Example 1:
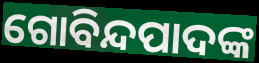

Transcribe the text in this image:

ଗୋବିନ୍ଦପାଦଙ୍କ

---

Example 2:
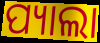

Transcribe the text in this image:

ପ୍ୟାଲା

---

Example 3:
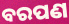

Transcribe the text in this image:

ବରପଣ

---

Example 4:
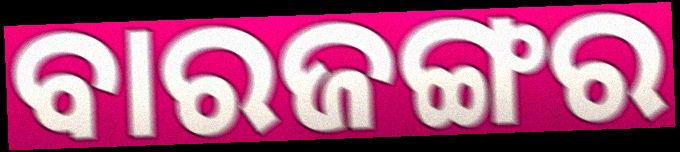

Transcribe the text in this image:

ବାରଜଙ୍ଗର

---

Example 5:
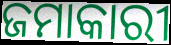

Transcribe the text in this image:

ଜମାକାରୀ